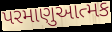
પરમાણુઆત્મક